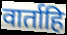
वार्ताहि